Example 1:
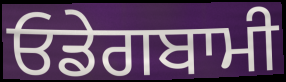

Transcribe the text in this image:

ਓਡੇਗਬਾਮੀ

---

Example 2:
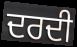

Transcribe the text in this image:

ਦਰਦੀ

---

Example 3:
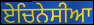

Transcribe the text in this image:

ਏਚਿਨੇਸੀਆ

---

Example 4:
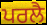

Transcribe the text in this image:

ਪਰਲੈ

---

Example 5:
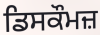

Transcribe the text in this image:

ਡਿਸਕੌਮਜ਼